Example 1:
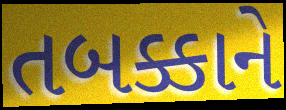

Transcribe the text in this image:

તબક્કાને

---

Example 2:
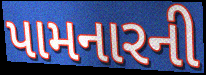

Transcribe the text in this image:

પામનારની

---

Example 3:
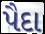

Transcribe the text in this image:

પૈદા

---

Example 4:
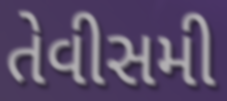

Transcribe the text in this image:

તેવીસમી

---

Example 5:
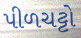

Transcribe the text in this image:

પીળચટ્ટો